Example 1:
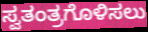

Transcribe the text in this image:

ಸ್ವತಂತ್ರಗೊಳಿಸಲು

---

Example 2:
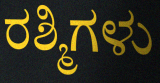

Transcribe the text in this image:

ರಶ್ಮಿಗಳು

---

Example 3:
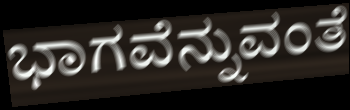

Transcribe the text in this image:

ಭಾಗವೆನ್ನುವಂತೆ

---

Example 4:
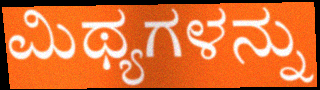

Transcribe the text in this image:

ಮಿಥ್ಯಗಳನ್ನು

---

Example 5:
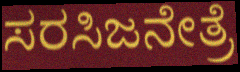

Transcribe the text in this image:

ಸರಸಿಜನೇತ್ರೆ